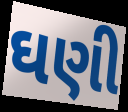
ઘણી